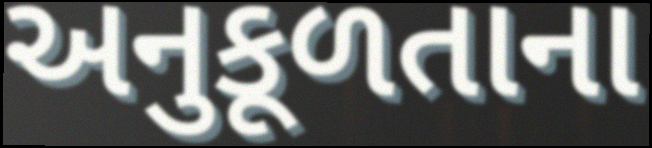
અનુકૂળતાના